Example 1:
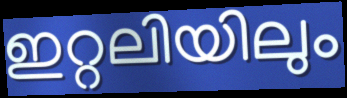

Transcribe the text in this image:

ഇറ്റലിയിലും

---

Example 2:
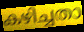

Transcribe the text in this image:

കഴിച്ചതാ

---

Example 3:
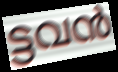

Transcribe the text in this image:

ട്ടവൻ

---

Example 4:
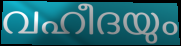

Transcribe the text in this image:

വഹീദയും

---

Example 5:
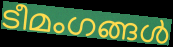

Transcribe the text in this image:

ടീമംഗങ്ങൾ